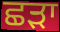
ਛਡ਼ਾ